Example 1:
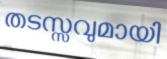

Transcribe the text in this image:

തടസ്സവുമായി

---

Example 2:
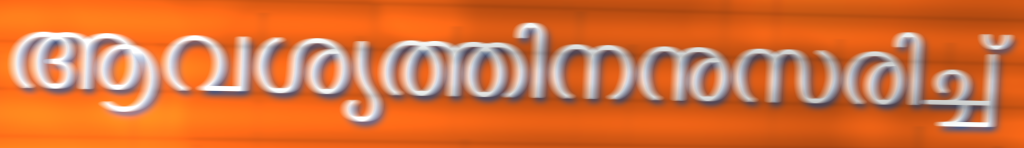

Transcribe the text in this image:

ആവശ്യത്തിനനുസരിച്ച്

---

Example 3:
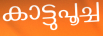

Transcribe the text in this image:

കാട്ടുപൂച്ച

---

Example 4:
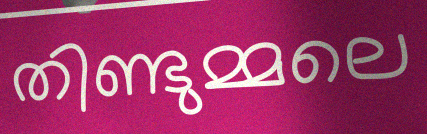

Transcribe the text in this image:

തിണ്ടുമ്മലെ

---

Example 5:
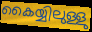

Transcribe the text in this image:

കൈയ്യിലുള്ളു